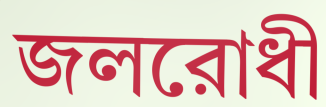
জলরোধী